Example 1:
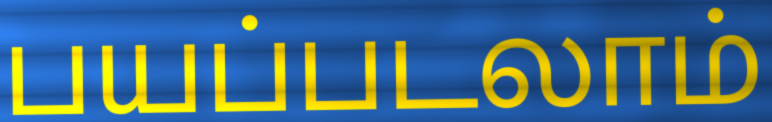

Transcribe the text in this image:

பயப்படலாம்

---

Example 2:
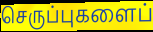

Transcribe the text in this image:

செருப்புகளைப்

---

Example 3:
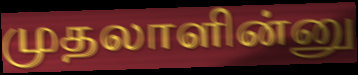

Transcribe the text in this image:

முதலாளின்னு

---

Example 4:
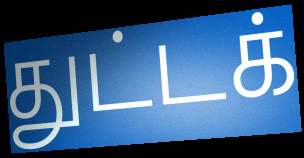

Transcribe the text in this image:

துட்டக்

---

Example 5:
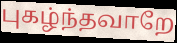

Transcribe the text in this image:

புகழ்ந்தவாறே